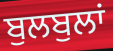
ਬੁਲਬੁਲਾਂ